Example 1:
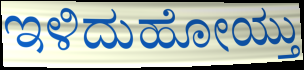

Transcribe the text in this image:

ಇಳಿದುಹೋಯ್ತು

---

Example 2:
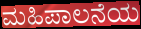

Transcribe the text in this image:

ಮಹಿಪಾಲನೆಯ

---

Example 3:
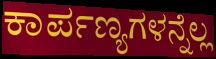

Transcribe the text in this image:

ಕಾರ್ಪಣ್ಯಗಳನ್ನೆಲ್ಲ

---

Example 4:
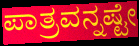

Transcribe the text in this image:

ಪಾತ್ರವನ್ನಷ್ಟೇ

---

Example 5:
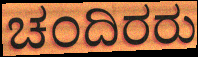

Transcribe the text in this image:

ಚಂದಿರರು